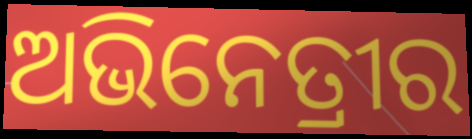
ଅଭିନେତ୍ରୀର